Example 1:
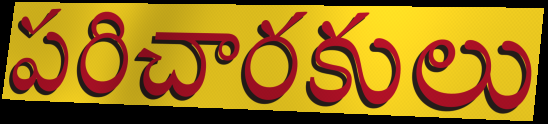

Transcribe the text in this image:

పరిచారకులు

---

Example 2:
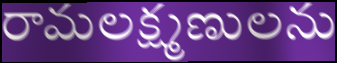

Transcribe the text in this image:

రామలక్ష్మణులను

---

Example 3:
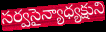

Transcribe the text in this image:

సర్వసైన్యాధ్యక్షుని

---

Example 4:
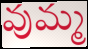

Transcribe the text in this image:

వుమ్మ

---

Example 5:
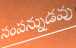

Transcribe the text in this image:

సంపన్నుడవు